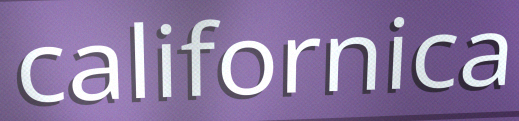
californica